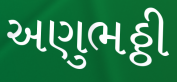
અણુભઠ્ઠી